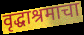
वृद्धाश्रमाचा